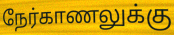
நேர்காணலுக்கு